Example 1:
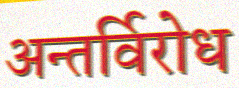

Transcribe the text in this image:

अन्तर्विरोध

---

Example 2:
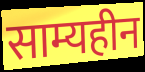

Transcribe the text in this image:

साम्यहीन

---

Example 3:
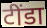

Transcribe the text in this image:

टींडा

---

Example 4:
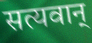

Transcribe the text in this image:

सत्यवान्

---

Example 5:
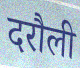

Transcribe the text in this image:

दरौली